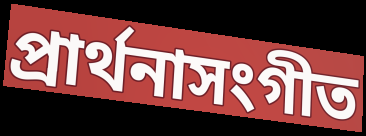
প্রার্থনাসংগীত